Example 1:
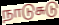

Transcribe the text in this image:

நாடுசுடு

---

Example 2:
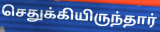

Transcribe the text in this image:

செதுக்கியிருந்தார்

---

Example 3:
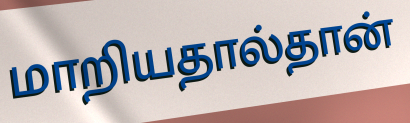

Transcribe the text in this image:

மாறியதால்தான்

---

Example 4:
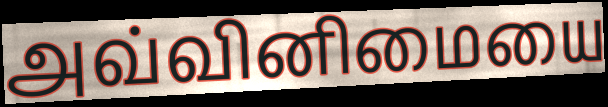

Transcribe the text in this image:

அவ்வினிமையை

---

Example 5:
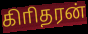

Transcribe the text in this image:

கிரிதரன்